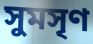
সুমসৃণ